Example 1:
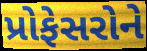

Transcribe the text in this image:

પ્રોફેસરોને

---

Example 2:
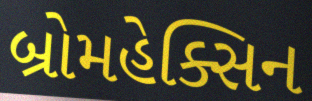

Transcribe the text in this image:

બ્રોમહેક્સિન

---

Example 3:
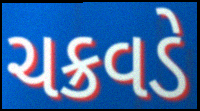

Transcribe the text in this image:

ચક્રવડે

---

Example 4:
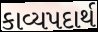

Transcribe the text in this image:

કાવ્યપદાર્થ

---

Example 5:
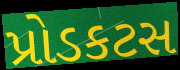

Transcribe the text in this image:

પ્રોડકટસ